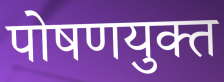
पोषणयुक्त